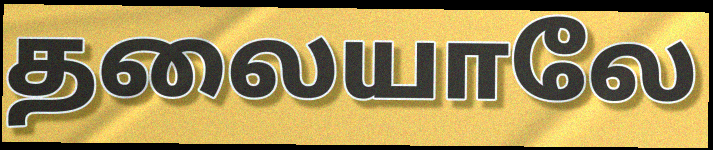
தலையாலே